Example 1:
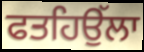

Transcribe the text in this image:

ਫਤਹਿਉੱਲਾ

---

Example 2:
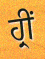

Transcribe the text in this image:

ਹ੍ਰੀਂ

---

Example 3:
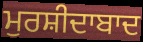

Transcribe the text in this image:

ਮੁਰਸ਼ੀਦਾਬਾਦ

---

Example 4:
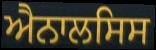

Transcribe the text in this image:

ਐਨਾਲਸਿਸ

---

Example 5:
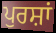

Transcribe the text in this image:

ਪੁਰਸ਼ਾਂ